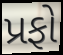
પ્રફો